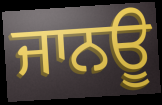
ਜਾਨਊ